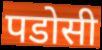
पडोसी